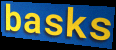
basks